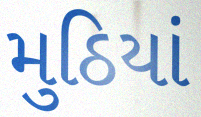
મુઠિયાં